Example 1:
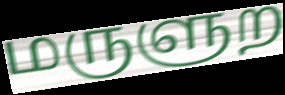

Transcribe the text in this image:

மருளுற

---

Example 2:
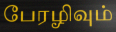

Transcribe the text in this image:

பேரழிவும்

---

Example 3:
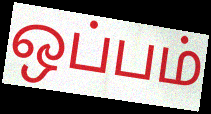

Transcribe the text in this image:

ஒப்பம்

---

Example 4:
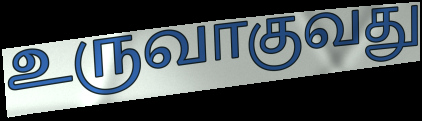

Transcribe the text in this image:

உருவாகுவது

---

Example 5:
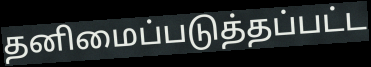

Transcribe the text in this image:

தனிமைப்படுத்தப்பட்ட